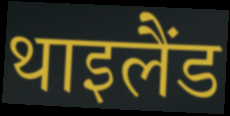
थाइलैंड